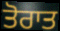
ਤੋਰਾਤ